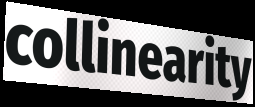
collinearity